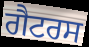
ਗੈਟਰਸ